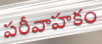
పరీవాహకం